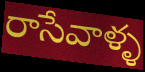
రాసేవాళ్ళ